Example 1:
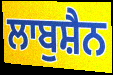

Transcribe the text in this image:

ਲਾਬੁਸ਼ੈਨ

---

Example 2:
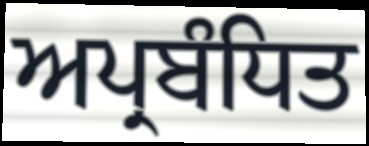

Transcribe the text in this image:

ਅਪ੍ਰਬੰਧਿਤ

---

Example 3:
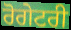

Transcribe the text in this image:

ਰੋਗੇਟਰੀ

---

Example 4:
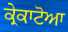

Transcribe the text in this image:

ਕ੍ਰੇਕਾਟੋਆ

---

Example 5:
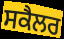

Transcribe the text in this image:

ਸਕੈਲਰ